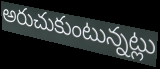
అరుచుకుంటున్నట్లు